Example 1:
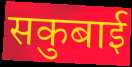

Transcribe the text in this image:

सकुबाई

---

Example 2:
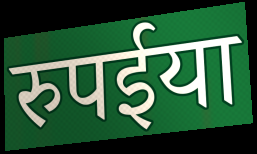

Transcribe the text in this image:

रुपईया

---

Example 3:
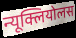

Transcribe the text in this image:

न्यूक्लियोलस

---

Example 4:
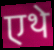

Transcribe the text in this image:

एथे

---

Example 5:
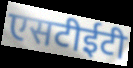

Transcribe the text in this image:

एसटीईटी